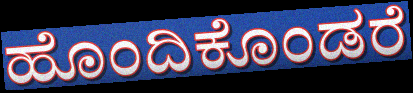
ಹೊಂದಿಕೊಂಡರೆ